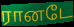
ரானடே